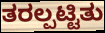
ತರಲ್ಪಟ್ಟಿತು